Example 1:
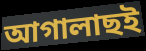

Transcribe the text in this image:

আগালাছই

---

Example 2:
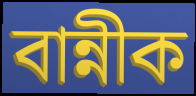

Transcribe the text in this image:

বান্নীক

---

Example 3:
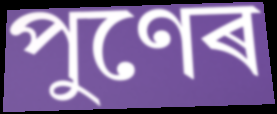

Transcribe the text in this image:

পুণেৰ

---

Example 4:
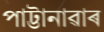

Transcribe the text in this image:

পাট্টানাৱাৰ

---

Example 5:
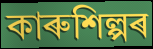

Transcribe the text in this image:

কাৰুশিল্পৰ